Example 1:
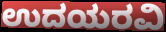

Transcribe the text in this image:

ಉದಯರವಿ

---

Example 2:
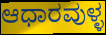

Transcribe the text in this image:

ಆಧಾರವುಳ್ಳ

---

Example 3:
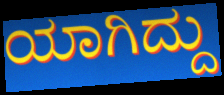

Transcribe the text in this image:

ಯಾಗಿದ್ದು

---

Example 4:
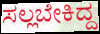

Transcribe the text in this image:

ಸಲ್ಲಬೇಕಿದ್ದ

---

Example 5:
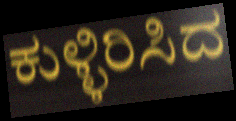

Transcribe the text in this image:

ಕುಳ್ಳಿರಿಸಿದ